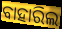
ବାହାରିଲ